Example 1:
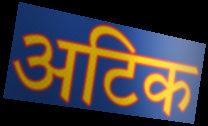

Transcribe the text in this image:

अटिक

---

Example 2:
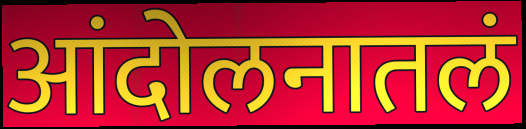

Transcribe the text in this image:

आंदोलनातलं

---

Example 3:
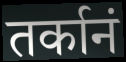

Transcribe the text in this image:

तर्कानं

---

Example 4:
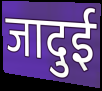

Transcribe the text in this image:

जादुई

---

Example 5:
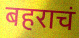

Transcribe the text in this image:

बहराचं